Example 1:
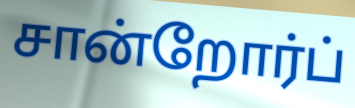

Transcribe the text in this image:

சான்றோர்ப்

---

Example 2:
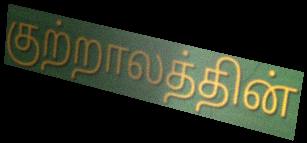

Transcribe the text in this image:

குற்றாலத்தின்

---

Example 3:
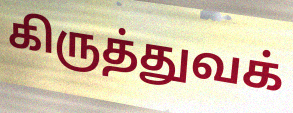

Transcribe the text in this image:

கிருத்துவக்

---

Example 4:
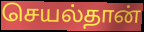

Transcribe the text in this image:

செயல்தான்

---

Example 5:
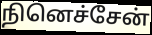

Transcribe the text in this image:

நினெச்சேன்